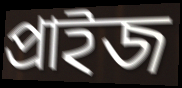
প্ৰাইজ